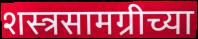
शस्त्रसामग्रीच्या